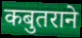
कबुतराने